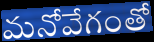
మనోవేగంతో